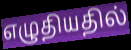
எழுதியதில்